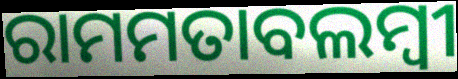
ରାମମତାବଲମ୍ବୀ